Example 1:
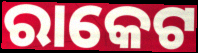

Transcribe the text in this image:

ରାକେଟ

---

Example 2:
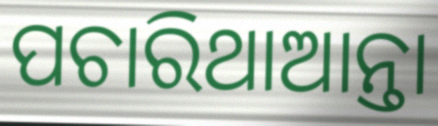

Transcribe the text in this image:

ପଚାରିଥାଆନ୍ତା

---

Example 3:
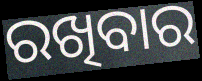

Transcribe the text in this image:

ରଖିବାର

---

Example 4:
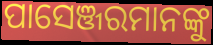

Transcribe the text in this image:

ପାସେଞ୍ଜରମାନଙ୍କୁ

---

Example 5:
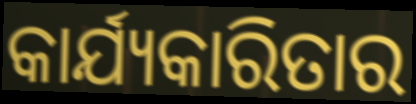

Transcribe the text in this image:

କାର୍ଯ୍ୟକାରିତାର